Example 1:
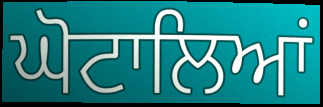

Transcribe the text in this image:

ਘੋਟਾਲਿਆਂ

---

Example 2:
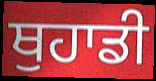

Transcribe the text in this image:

ਥੁਹਾਡੀ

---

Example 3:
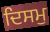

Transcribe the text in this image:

ਦਿਸਮੁ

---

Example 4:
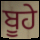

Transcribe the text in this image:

ਬੂਹੇ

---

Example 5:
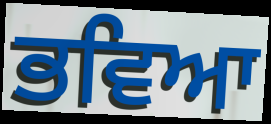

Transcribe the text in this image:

ਭਵਿਆ